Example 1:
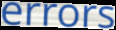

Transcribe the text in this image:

errors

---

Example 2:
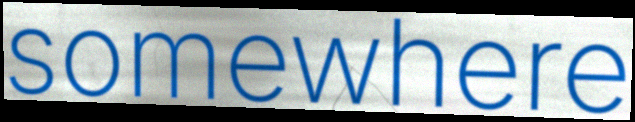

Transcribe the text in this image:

somewhere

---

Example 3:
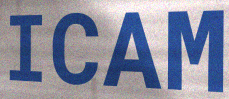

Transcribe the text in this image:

ICAM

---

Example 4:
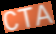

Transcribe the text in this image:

CTA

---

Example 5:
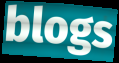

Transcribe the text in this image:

blogs